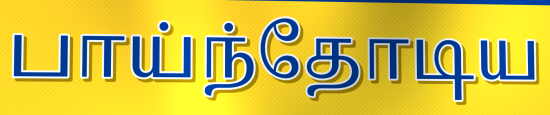
பாய்ந்தோடிய